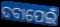
ଦବାପେଇଁ